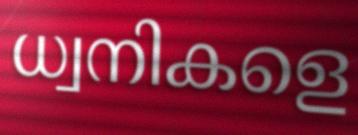
ധ്വനികളെ